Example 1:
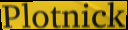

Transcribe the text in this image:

Plotnick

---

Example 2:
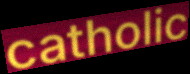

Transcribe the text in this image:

catholic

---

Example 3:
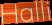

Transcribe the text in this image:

Halli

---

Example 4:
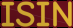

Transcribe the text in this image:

ISIN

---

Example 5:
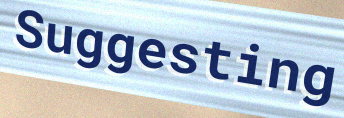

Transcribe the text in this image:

Suggesting